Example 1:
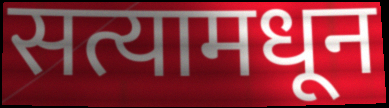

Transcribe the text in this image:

सत्यामधून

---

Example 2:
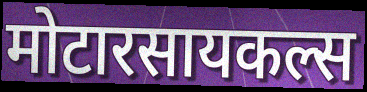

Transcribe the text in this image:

मोटारसायकल्स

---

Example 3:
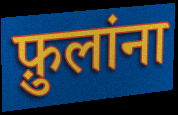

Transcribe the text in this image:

फ़ुलांना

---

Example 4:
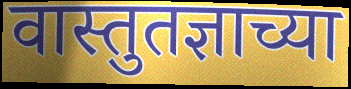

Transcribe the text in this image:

वास्तुतज्ञाच्या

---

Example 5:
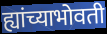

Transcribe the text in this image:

ह्यांच्याभोवती